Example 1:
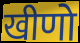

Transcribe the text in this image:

खीणो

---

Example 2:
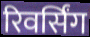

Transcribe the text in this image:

रिवर्सिंग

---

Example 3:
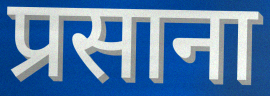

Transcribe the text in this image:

प्रसाना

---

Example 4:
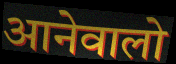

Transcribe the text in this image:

आनेवालो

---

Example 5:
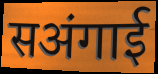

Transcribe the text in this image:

सअंगाई